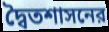
দ্বৈতশাসনের